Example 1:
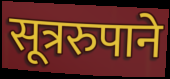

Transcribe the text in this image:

सूत्ररुपाने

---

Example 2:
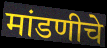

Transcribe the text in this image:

मांडणीचे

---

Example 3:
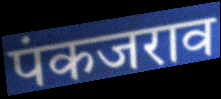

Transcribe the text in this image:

पंकजराव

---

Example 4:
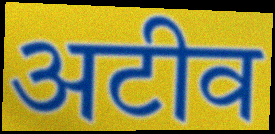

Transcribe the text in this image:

अटीव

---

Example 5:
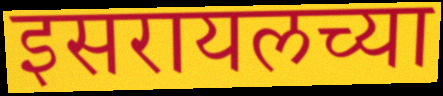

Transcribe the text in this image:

इसरायलच्या